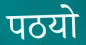
पठयो